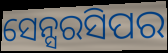
ସେନ୍ସରସିପର